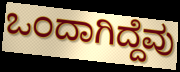
ಒಂದಾಗಿದ್ದೆವು